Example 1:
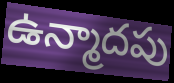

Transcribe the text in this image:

ఉన్మాదపు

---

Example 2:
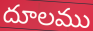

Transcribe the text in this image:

దూలము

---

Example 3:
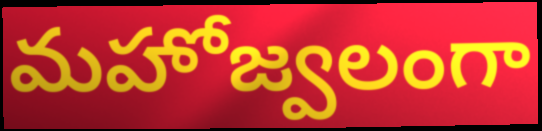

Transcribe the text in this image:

మహోజ్వలంగా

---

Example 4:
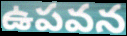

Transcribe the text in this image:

ఉపవన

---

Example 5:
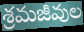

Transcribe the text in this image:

శ్రమజీవుల